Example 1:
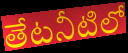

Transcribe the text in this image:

తేటనీటిలో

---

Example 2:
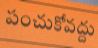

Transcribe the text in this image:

పంచుకోవద్దు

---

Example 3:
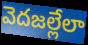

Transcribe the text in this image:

వెదజల్లేలా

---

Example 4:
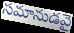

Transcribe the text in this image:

సమానుడవై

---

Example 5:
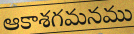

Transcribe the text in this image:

ఆకాశగమనము